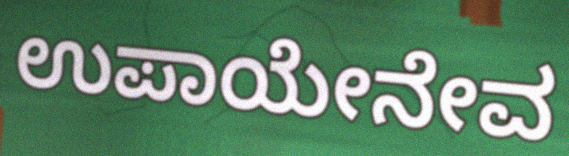
ಉಪಾಯೇನೇವ